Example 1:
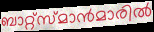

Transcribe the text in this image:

ബാറ്റ്സ്മാൻമാരിൽ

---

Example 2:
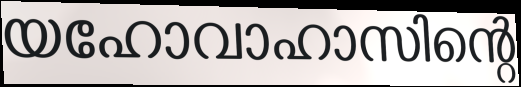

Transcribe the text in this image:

യഹോവാഹാസിന്റെ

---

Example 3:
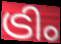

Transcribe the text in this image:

ട്രിം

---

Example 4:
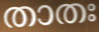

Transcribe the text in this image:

താതഃ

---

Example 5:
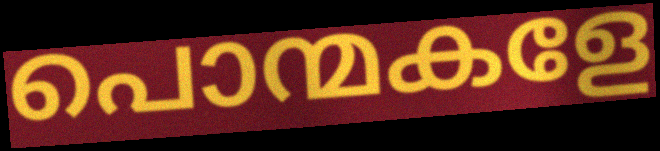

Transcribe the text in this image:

പൊന്മകളേ